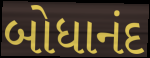
બોધાનંદ